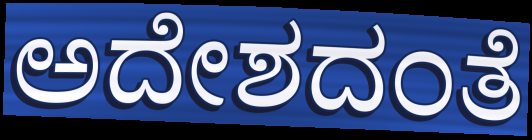
ಅದೇಶದಂತೆ